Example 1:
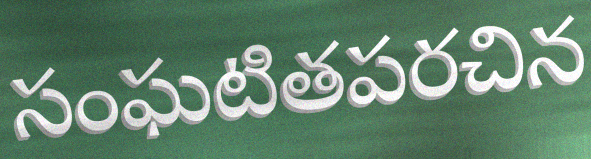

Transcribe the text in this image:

సంఘటితపరచిన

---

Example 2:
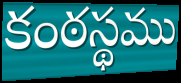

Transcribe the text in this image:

కంఠస్థము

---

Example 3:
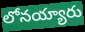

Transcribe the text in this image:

లోనయ్యారు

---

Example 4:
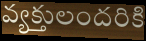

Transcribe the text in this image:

వ్యక్తులందరికి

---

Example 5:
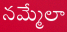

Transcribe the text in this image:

నమ్మేలా